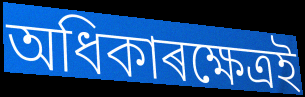
অধিকাৰক্ষেত্ৰই